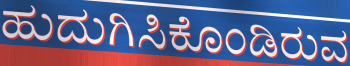
ಹುದುಗಿಸಿಕೊಂಡಿರುವ